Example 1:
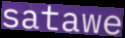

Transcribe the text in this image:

satawe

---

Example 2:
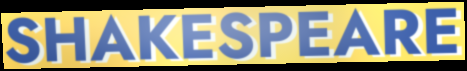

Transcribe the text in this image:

SHAKESPEARE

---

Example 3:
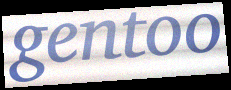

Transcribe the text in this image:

gentoo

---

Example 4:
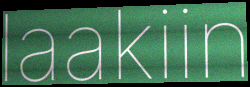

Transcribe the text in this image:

laakiin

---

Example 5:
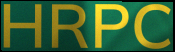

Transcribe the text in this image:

HRPC